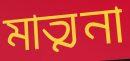
মাত্মনা